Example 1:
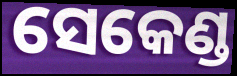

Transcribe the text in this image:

ସେକେଣ୍ଡ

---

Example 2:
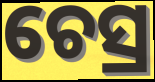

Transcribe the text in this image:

ଚେସ୍ର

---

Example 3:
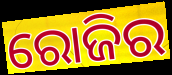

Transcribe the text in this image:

ରୋଜିର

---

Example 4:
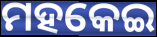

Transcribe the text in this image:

ମହକେଇ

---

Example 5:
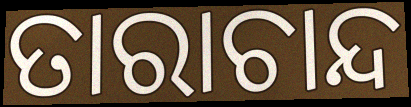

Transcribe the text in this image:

ତାରାଚାନ୍ଦ